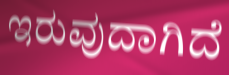
ಇರುವುದಾಗಿದೆ